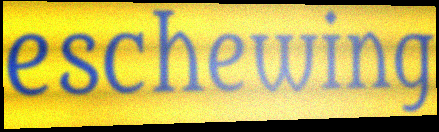
eschewing